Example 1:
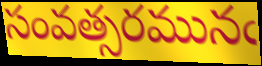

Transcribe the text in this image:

సంవత్సరమునఁ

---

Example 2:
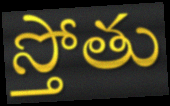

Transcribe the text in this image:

స్తోతు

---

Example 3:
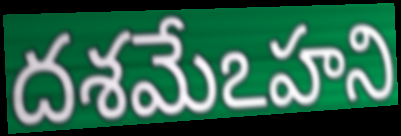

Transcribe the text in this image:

దశమేఽహని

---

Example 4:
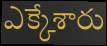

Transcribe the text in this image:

ఎక్కేశారు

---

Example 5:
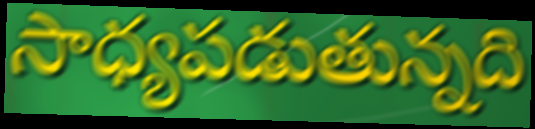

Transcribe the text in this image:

సాధ్యపడుతున్నది